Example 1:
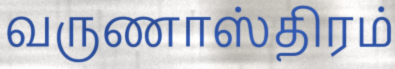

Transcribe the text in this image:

வருணாஸ்திரம்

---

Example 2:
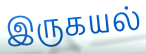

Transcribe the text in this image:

இருகயல்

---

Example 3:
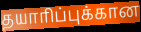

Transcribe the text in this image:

தயாரிப்புக்கான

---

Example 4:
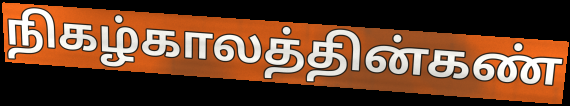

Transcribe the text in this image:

நிகழ்காலத்தின்கண்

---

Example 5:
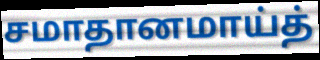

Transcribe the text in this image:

சமாதானமாய்த்